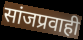
सांजप्रवाही